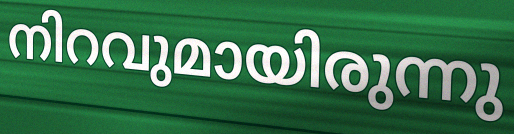
നിറവുമായിരുന്നു